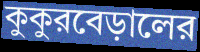
কুকুরবেড়ালের